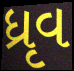
ધ્રૃવ